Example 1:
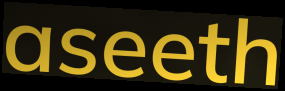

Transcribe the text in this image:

aseeth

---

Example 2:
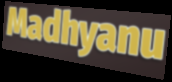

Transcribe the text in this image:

Madhyanu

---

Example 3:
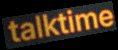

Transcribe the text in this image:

talktime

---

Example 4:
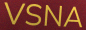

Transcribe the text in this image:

VSNA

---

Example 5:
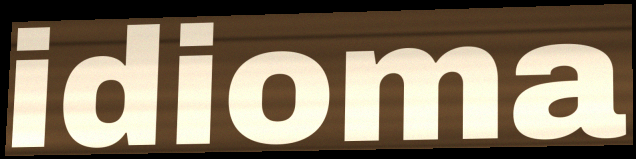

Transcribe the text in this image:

idioma